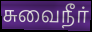
சுவைநீர்